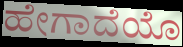
ಹೇಗಾದೆಯೊ